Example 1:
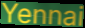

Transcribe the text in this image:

Yennai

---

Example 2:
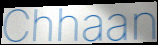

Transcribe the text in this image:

Chhaan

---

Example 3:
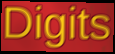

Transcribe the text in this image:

Digits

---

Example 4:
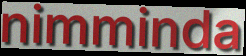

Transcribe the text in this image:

nimminda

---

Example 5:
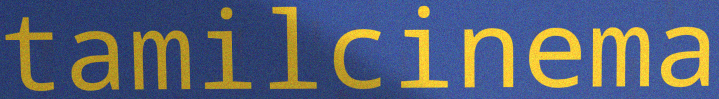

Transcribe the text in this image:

tamilcinema